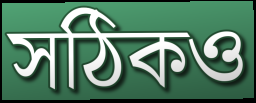
সঠিকও